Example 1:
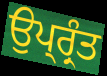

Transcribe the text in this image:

ਉਪ੍ਰ੍ਰੰਤ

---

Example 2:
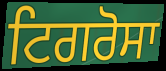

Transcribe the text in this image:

ਟਿਗਰੋਸਾ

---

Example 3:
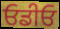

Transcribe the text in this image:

ਓਡੀਓ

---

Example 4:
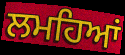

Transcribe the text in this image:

ਲਮਹਿਆਂ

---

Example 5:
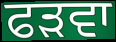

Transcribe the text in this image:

ਫੜਵਾ